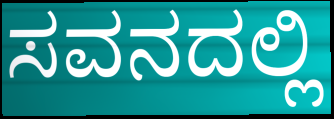
ಸವನದಲ್ಲಿ